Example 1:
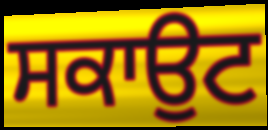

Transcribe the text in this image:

ਸਕਾਉਟ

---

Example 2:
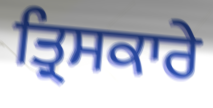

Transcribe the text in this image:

ਤ੍ਰਿਸਕਾਰੇ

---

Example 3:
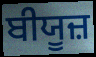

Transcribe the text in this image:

ਬੀਯੂਜ਼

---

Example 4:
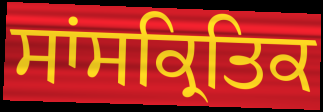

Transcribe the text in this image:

ਸਾਂਸਕ੍ਰਿਤਿਕ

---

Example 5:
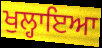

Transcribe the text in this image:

ਖੁਲ੍ਹਾਇਆ